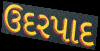
ઉદરપાદ